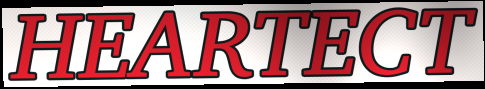
HEARTECT